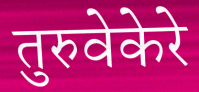
तुरुवेकेरे